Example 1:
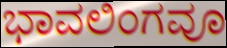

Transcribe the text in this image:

ಭಾವಲಿಂಗವೂ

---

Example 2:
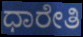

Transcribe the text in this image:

ಧಾರೇತಿ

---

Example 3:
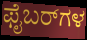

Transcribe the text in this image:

ಫೈಬರ್‌ಗಳ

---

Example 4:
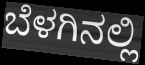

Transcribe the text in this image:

ಬೆಳಗಿನಲ್ಲಿ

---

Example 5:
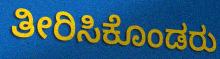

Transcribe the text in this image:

ತೀರಿಸಿಕೊಂಡರು